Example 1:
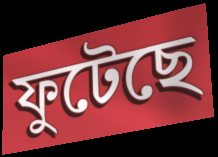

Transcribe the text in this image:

ফুটেছে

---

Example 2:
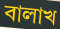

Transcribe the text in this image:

বালাখ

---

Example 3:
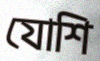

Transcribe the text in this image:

যোশি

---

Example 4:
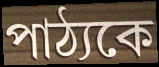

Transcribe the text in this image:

পাঠ্যকে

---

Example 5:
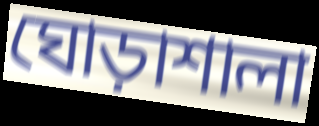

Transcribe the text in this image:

ঘোড়াশালা